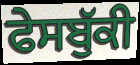
ਫੇਸਬੁੱਕੀ